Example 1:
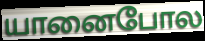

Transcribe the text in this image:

யானைபோல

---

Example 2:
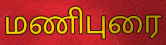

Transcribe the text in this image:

மணிபுரை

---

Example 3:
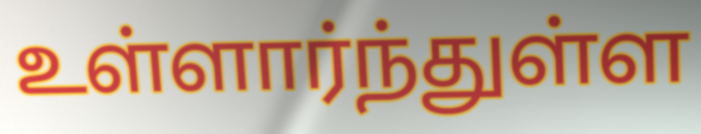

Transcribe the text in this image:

உள்ளார்ந்துள்ள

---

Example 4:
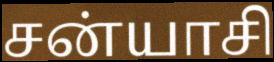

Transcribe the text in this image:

சன்யாசி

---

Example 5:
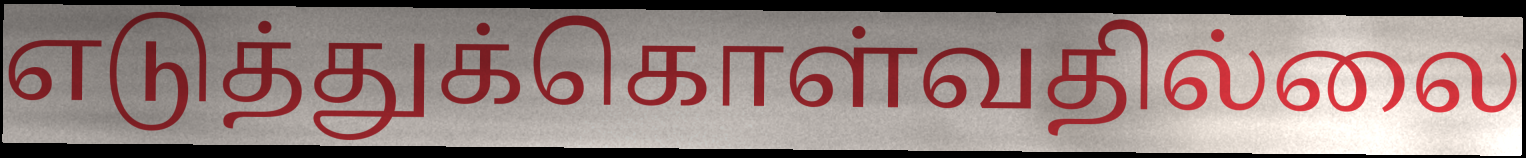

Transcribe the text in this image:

எடுத்துக்கொள்வதில்லை